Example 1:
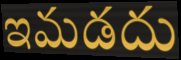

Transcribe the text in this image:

ఇమడదు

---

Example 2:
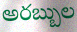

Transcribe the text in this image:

అరబ్బుల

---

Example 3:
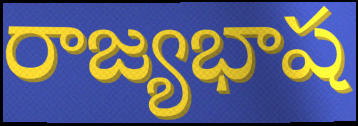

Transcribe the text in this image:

రాజ్యభాష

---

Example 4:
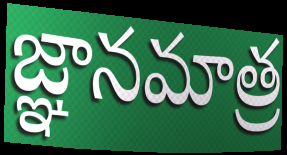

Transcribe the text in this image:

జ్ఞానమాత్ర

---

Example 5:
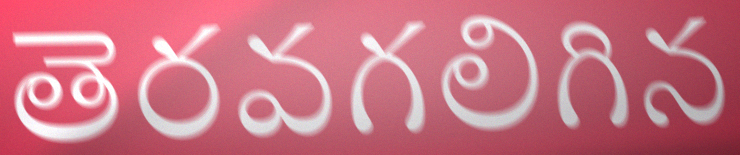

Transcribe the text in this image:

తెరవగలిగిన